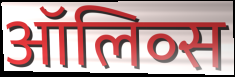
ऑलिव्स